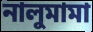
নালুমামা